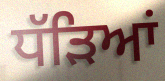
ਧੱੜਿਆਂ